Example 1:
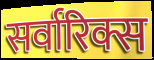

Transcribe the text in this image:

सर्वारिक्स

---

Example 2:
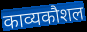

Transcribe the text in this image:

काव्यकौशल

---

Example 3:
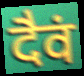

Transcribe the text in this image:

दैवं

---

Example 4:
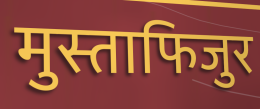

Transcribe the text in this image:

मुस्ताफिजुर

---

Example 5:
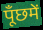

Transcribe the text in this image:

पूँछमें